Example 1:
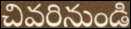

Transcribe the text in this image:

చివరినుండి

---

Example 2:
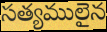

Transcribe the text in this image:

సత్యములైన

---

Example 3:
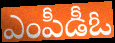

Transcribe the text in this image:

ఎంపీడీఓ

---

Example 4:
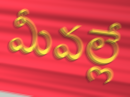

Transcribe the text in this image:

మీవల్లే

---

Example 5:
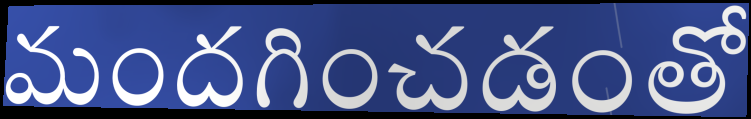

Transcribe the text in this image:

మందగించడంతో